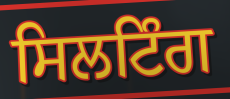
ਸਿਲਟਿੰਗ